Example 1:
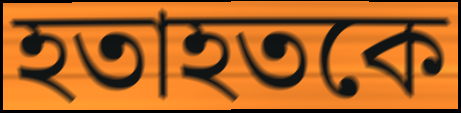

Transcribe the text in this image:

হতাহতকে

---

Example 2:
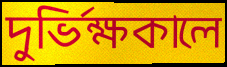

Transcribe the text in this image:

দুর্ভিক্ষকালে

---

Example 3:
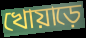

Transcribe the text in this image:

খোয়াড়ে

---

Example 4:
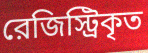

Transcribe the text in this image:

রেজিস্ট্রিকৃত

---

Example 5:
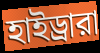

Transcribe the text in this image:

হাইড্রারা